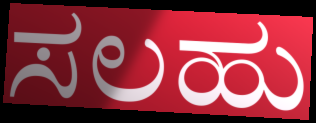
ಸಲಹು